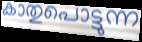
കാതുപൊട്ടുന്ന